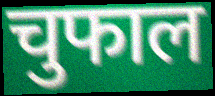
चुफाल